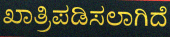
ಖಾತ್ರಿಪಡಿಸಲಾಗಿದೆ